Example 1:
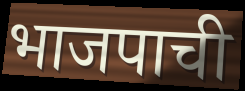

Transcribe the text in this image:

भाजपाची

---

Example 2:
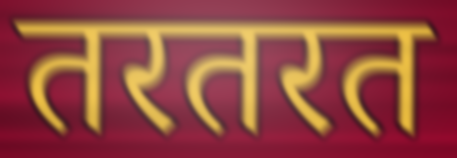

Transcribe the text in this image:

तरतरत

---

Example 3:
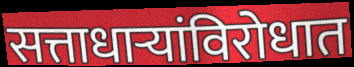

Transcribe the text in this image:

सत्ताधाऱ्यांविरोधात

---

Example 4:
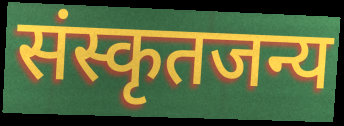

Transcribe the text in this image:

संस्कृतजन्य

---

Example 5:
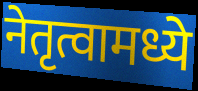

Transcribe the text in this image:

नेतृत्वामध्ये